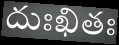
దుఃఖితః